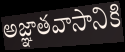
అజ్ఞాతవాసానికి